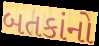
બતકાંનો